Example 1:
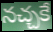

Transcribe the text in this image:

నచ్చకే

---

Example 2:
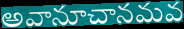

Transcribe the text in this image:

అవానూచానమవ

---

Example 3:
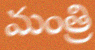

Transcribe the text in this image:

మంత్రి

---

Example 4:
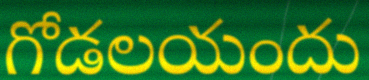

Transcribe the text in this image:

గోడలయందు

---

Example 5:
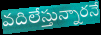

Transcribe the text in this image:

వదిలేస్తున్నారనే